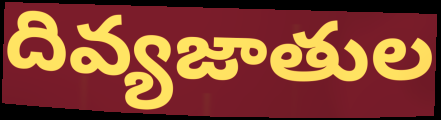
దివ్యజాతుల